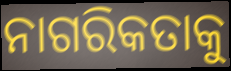
ନାଗରିକତାକୁ